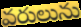
వరులును